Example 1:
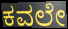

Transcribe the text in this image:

ಕವಲೇ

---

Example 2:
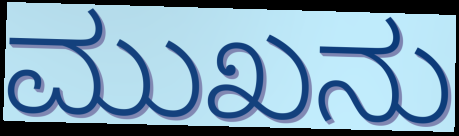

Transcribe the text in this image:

ಮುಖನು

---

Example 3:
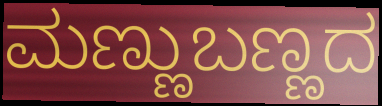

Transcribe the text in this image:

ಮಣ್ಣುಬಣ್ಣದ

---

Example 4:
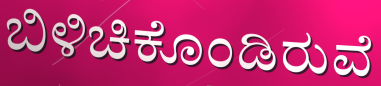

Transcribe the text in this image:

ಬಿಳಿಚಿಕೊಂಡಿರುವೆ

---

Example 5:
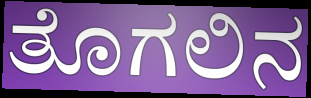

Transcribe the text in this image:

ತೊಗಲಿನ